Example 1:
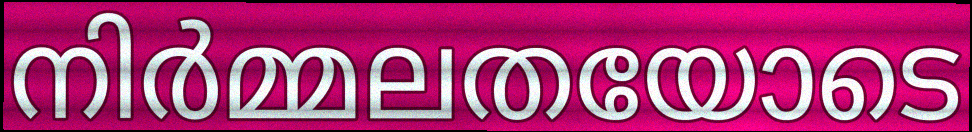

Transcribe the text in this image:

നിർമ്മലതയോടെ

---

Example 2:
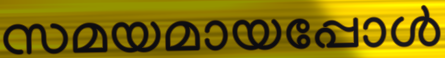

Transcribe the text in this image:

സമയമായപ്പോൾ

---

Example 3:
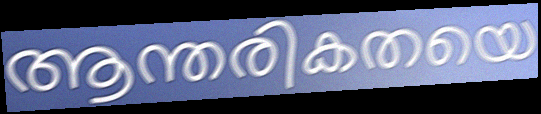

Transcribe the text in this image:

ആന്തരികതയെ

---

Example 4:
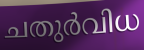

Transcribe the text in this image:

ചതുർവിധ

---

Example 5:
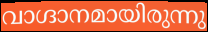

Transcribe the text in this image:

വാഗ്ദാനമായിരുന്നു